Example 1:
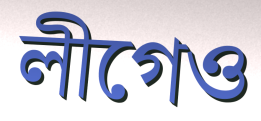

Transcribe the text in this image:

লীগেও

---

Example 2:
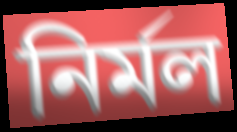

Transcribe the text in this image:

নিৰ্মল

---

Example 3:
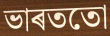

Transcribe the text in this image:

ভাৰততো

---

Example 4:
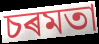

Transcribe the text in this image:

চৰমতা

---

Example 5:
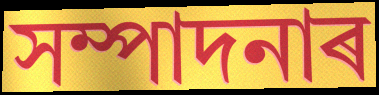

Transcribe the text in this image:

সম্পাদনাৰ